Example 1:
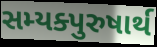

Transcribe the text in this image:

સમ્યક્પુરુષાર્થ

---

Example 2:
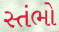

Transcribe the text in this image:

સ્તંભો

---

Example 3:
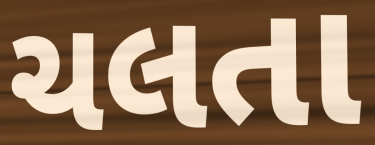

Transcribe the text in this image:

ચલતા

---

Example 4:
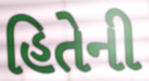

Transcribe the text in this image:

હિતેની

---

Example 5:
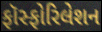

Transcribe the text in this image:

ફૉસ્ફોરિલેશન